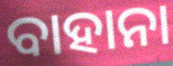
ବାହାନା